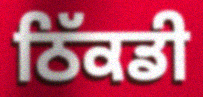
ਠਿੱਕਡੀ